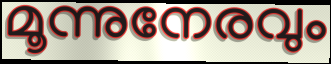
മൂന്നുനേരവും